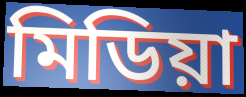
মিডিয়া